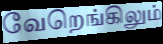
வேறெங்கிலும்